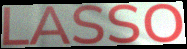
LASSO